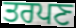
ਤਰਪਣ